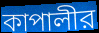
কাপালীর